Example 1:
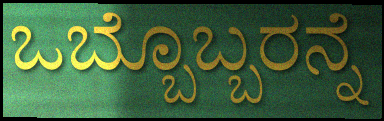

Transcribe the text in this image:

ಒಬ್ಬೊಬ್ಬರನ್ನೆ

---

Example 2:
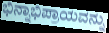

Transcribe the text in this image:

ಭಿನ್ನಾಭಿಪ್ರಾಯವನ್ನು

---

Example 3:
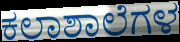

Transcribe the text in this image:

ಕಲಾಶಾಲೆಗಳ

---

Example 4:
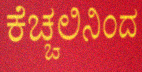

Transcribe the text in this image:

ಕೆಚ್ಚಲಿನಿಂದ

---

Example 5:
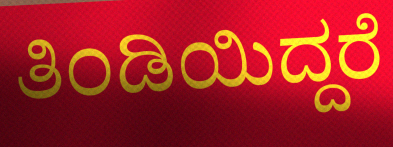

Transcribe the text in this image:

ತಿಂಡಿಯಿದ್ದರೆ